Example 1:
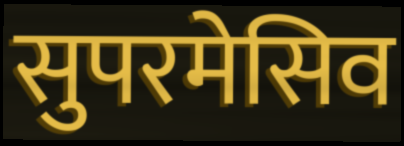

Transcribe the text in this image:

सुपरमेसिव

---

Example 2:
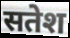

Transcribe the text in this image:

सतेश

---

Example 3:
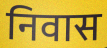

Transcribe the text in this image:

निवास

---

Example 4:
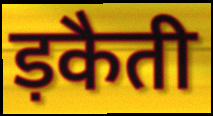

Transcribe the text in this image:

ड़कैती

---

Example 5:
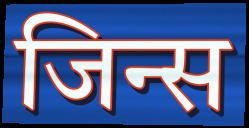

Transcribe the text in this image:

जिन्‍स